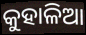
କୁହାଳିଆ